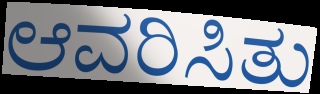
ಆವರಿಸಿತು